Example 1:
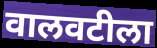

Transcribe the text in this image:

वालवटीला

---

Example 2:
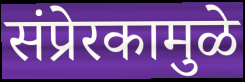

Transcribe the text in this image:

संप्रेरकामुळे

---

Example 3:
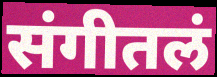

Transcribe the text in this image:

संगीतलं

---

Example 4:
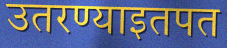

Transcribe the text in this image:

उतरण्याइतपत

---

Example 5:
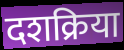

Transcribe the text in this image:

दशक्रिया